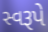
સ્વરૂપે